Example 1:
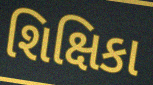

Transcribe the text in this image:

શિક્ષિકા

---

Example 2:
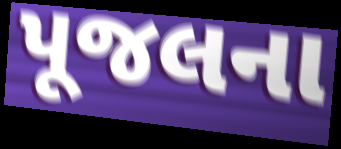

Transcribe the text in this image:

પૂજલના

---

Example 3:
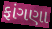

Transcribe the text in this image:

ફાંગણા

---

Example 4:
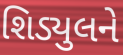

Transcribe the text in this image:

શિડ્યુલને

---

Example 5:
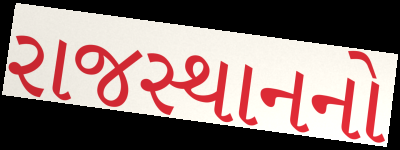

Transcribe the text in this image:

રાજસ્થાનનો